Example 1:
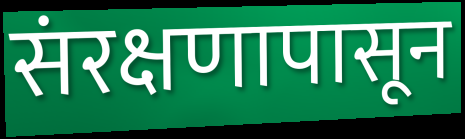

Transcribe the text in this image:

संरक्षणापासून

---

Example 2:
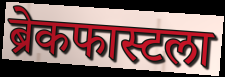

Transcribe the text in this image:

ब्रेकफास्टला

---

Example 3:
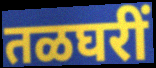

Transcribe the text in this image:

तळघरीं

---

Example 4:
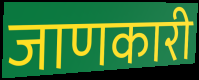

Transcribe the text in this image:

जाणकारी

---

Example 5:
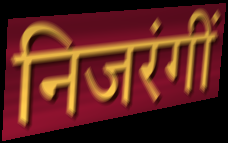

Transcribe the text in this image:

निजरंगीं